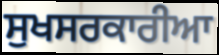
ਸੁਖਸਰਕਾਰੀਆ